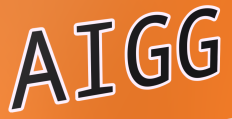
AIGG